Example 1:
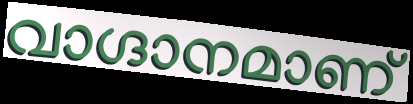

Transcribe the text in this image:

വാഗ്ദാനമാണ്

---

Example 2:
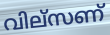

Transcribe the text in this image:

വില്സണ്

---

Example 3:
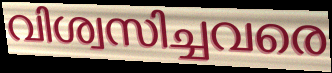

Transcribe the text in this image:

വിശ്വസിച്ചവരെ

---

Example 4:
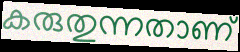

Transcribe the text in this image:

കരുതുന്നതാണ്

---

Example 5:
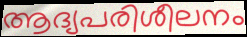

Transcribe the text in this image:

ആദ്യപരിശീലനം